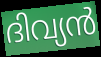
ദിവ്യൻ